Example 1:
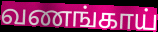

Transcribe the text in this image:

வணங்காய்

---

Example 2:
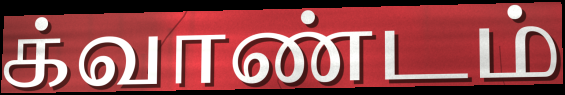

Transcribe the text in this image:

க்வாண்டம்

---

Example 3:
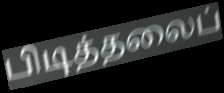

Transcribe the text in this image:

பிடித்தலைப்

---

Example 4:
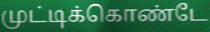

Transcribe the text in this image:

முட்டிக்கொண்டே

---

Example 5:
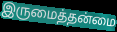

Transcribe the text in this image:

இருமைத்தன்மை